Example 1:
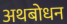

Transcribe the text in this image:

अथबोधन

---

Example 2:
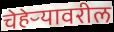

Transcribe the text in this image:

चेहेऱ्यावरील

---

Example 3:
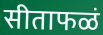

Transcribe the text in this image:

सीताफळं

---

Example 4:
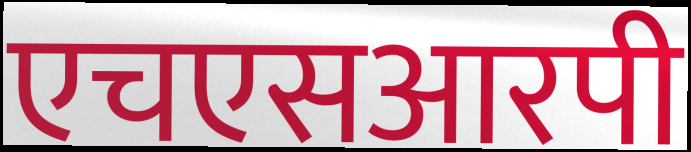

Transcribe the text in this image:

एचएसआरपी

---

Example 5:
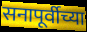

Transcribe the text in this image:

सनापूर्वीच्या